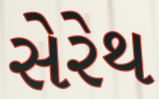
સેરેથ